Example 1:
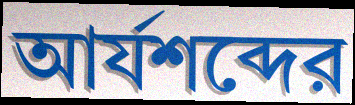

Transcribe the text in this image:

আর্যশব্দের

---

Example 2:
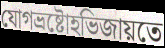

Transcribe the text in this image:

যোগভ্রষ্টোহভিজায়তে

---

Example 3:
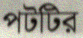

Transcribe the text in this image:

পটটির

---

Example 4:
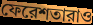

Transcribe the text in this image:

ফেরেশতারাও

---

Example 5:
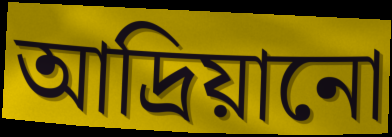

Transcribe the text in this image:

আদ্রিয়ানো